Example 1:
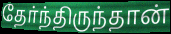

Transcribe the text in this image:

தேர்ந்திருந்தான்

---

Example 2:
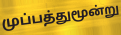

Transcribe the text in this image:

முப்பத்துமூன்று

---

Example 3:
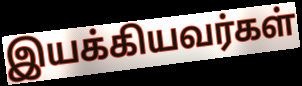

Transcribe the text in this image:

இயக்கியவர்கள்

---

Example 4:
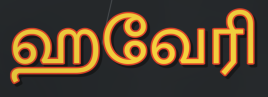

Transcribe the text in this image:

ஹவேரி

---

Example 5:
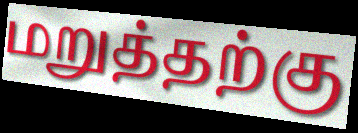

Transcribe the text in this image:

மறுத்தற்கு